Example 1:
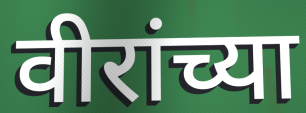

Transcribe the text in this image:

वीरांच्या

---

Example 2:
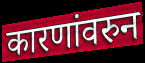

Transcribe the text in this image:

कारणांवरुन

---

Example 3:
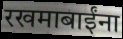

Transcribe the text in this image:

रखमाबाईंना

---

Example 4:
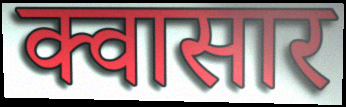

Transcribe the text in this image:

क्वासार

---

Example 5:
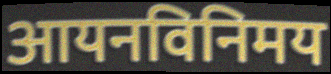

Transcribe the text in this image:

आयनविनिमय